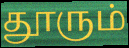
தூரும்